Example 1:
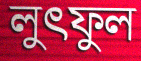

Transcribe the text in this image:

লুৎফুল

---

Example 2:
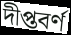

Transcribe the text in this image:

দীপ্তবর্ণ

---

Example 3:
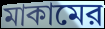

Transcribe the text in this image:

মাকামের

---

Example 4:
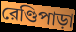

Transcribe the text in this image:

রেণ্ডিপাড়া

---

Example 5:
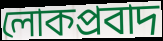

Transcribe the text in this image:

লোকপ্রবাদ